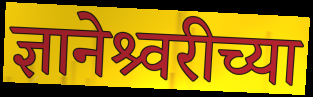
ज्ञानेश्र्वरीच्या